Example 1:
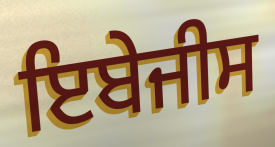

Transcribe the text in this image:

ਇਬੇਜੀਸ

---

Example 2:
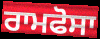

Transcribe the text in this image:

ਰਾਮਫੋਸਾ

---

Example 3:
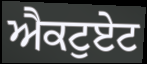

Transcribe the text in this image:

ਐਕਟੁਏਟ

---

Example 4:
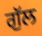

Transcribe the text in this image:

ਗੁੱਲ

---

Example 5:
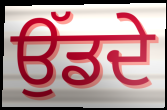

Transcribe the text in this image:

ਉੱਡਦੇ